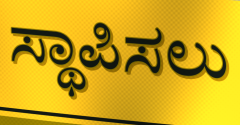
ಸ್ಥಾಪಿಸಲು